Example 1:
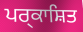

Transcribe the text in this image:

ਪਰ੍ਕਾਸ਼ਿਤ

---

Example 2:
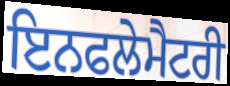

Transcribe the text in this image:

ਇਨਫਲੇਮੈਟਰੀ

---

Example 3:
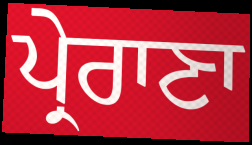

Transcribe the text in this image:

ਪ੍ਰੇਰਾਣਾ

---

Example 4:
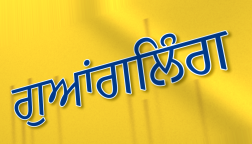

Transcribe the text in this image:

ਗੁਆਂਗਲਿੰਗ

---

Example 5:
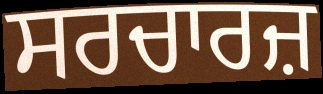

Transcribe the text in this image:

ਸਰਚਾਰਜ਼